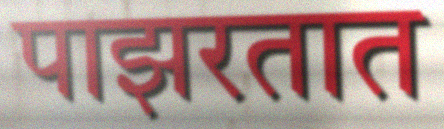
पाझरतात